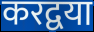
करद्वया